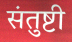
संतुष्टी